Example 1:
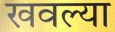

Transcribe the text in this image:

खवल्या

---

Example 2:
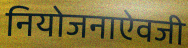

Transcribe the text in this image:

नियोजनाऐवजी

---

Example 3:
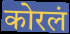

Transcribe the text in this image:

कोरलं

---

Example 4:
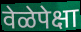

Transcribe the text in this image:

वेळेपेक्षा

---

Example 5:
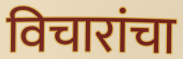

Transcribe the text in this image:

विचारांचा